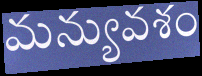
మన్యువశం